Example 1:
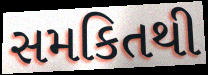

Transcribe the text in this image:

સમકિતથી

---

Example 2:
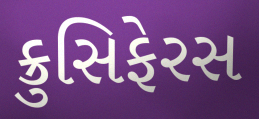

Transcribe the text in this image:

ક્રુસિફેરસ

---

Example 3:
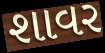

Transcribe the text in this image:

શાવર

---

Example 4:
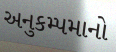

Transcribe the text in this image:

અનુકમ્પમાનો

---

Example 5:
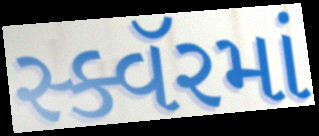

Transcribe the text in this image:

સ્ક્વૅરમાં